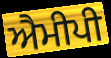
ਐਮੀਪੀ